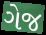
ગેજ